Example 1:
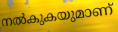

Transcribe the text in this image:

നൽകുകയുമാണ്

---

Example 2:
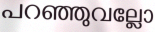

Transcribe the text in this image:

പറഞ്ഞുവല്ലോ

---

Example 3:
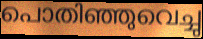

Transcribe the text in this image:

പൊതിഞ്ഞുവെച്ചു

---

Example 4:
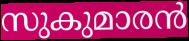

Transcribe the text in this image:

സുകുമാരൻ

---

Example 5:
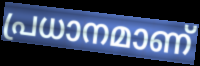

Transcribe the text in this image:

പ്രധാനമാണ്